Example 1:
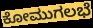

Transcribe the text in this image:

ಕೋಮುಗಲಭೆ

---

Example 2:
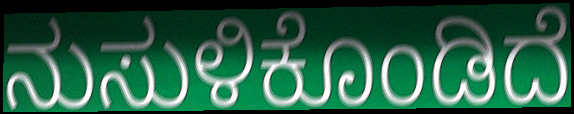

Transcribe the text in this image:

ನುಸುಳಿಕೊಂಡಿದೆ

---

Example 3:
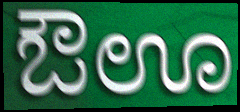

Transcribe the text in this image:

ಔಊ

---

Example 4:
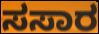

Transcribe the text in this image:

ಸಸಾರ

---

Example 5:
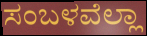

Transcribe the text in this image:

ಸಂಬಳವೆಲ್ಲಾ